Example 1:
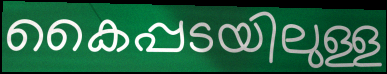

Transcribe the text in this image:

കൈപ്പടയിലുള്ള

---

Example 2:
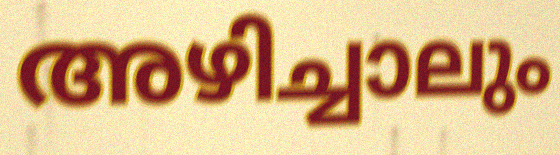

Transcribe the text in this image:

അഴിച്ചാലും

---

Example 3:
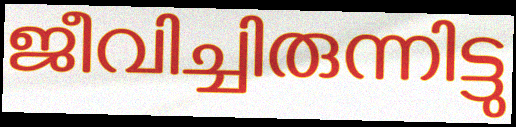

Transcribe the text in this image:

ജീവിച്ചിരുന്നിട്ടു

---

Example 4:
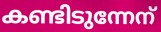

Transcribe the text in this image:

കണ്ടിടുന്നേന്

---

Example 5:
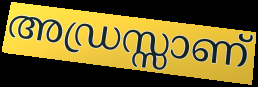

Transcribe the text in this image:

അഡ്രസ്സാണ്